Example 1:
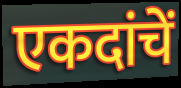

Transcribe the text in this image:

एकदांचें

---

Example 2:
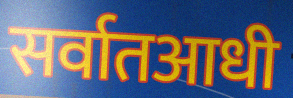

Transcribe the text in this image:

सर्वातआधी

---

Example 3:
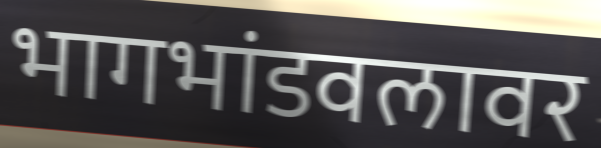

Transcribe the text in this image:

भागभांडवलावर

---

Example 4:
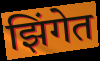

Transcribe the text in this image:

झिंगेत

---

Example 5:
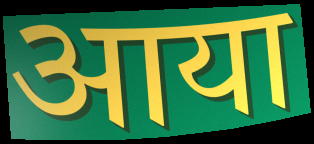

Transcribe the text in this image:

आया